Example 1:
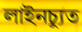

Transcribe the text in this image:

লাইনচ্যুত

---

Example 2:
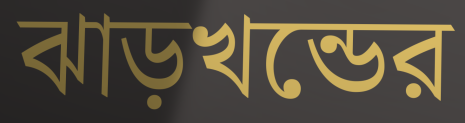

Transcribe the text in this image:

ঝাড়খন্ডের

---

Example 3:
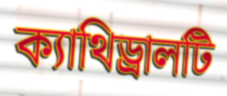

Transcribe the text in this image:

ক্যাথিড্রালটি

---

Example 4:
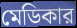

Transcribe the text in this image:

মেডিকার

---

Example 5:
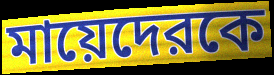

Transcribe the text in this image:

মায়েদেরকে